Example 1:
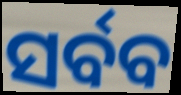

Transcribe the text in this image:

ସର୍ବବ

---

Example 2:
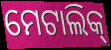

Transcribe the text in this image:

ମେଟାଲିକ୍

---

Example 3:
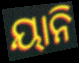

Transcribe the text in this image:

ୟାନି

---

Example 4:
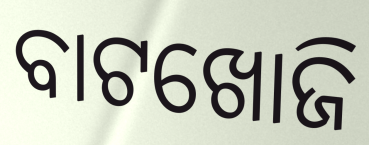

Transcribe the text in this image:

ବାଟଖୋଜି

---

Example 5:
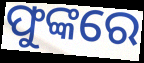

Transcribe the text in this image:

ଫୁଙ୍କରେ